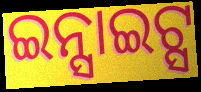
ଇନ୍ସାଇଟ୍ସ